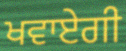
ਖਵਾਏਗੀ